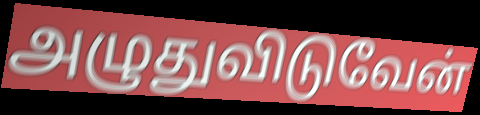
அழுதுவிடுவேன்